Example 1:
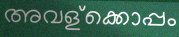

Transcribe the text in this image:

അവള്ക്കൊപ്പം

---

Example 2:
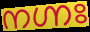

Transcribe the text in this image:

നഗ്നഃ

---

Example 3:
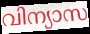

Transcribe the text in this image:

വിന്യാസ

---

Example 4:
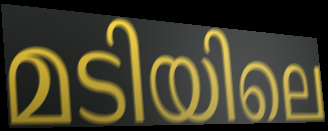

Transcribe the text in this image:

മടിയിലെ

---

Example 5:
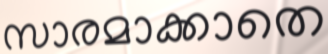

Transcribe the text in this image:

സാരമാക്കാതെ